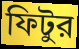
ফিটুর